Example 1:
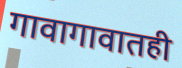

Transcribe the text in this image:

गावागावातही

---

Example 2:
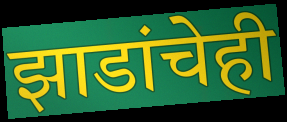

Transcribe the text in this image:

झाडांचेही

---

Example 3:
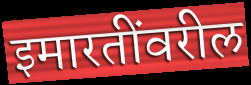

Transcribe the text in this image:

इमारतींवरील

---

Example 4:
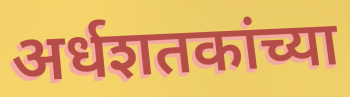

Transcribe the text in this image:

अर्धशतकांच्या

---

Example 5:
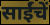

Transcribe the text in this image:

साईंचें